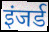
इंजर्ड